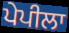
ਪੇਪੀਲਾ